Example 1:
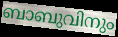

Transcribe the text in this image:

ബാബുവിനും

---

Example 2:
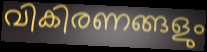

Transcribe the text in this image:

വികിരണങ്ങളും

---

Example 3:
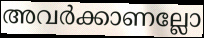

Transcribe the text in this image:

അവർക്കാണല്ലോ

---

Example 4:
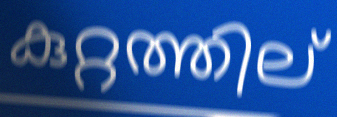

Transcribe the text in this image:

കുറ്റത്തില്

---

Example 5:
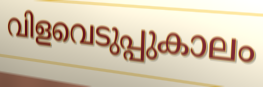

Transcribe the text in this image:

വിളവെടുപ്പുകാലം